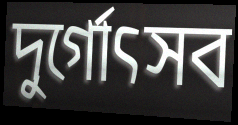
দুর্গোৎসব